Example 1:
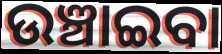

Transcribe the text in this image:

ଉଞ୍ଚାଇବା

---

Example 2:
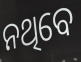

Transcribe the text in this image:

ନଥିବେ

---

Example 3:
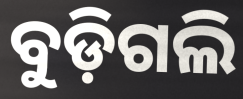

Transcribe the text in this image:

ବୁଡ଼ିଗଲି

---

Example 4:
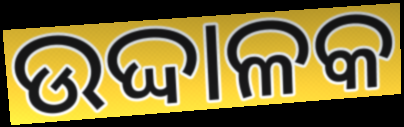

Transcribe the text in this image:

ଉଦ୍ଦାଳକ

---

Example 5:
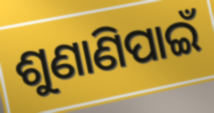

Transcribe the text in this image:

ଶୁଣାଣିପାଇଁ